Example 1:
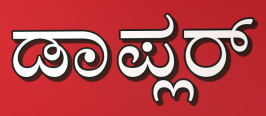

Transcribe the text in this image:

ಡಾಪ್ಲರ್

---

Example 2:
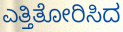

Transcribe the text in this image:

ಎತ್ತಿತೋರಿಸಿದ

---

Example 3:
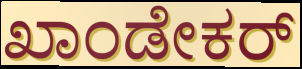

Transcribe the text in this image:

ಖಾಂಡೇಕರ್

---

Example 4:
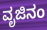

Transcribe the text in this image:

ವೃಜಿನಂ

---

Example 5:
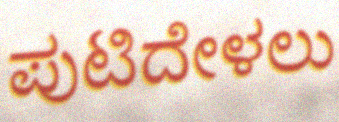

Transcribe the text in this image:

ಪುಟಿದೇಳಲು